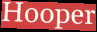
Hooper